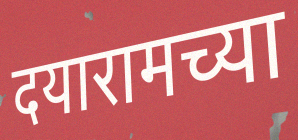
दयारामच्या